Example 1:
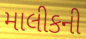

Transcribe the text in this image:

માલીકની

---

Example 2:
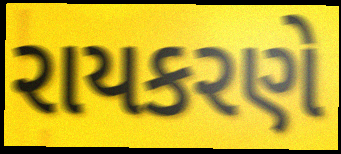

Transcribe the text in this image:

રાયકરણે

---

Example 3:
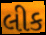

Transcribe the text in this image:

લીક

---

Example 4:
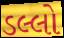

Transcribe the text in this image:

ડલ્લો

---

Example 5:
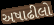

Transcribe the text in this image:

અષાઢીલો